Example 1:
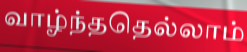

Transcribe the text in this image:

வாழ்ந்ததெல்லாம்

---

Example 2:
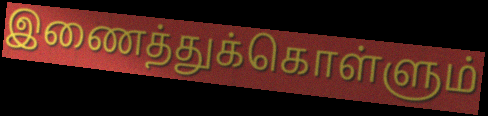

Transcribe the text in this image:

இணைத்துக்கொள்ளும்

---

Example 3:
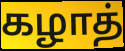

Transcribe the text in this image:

கழாத்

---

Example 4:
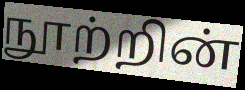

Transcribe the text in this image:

நூற்றின்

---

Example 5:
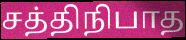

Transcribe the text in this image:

சத்திநிபாத